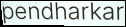
pendharkar